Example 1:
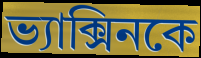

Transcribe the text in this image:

ভ্যাক্সিনকে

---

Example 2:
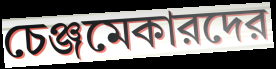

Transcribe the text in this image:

চেঞ্জমেকারদের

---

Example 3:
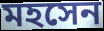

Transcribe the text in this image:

মহসেন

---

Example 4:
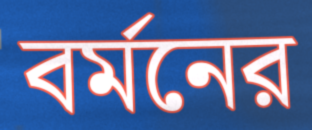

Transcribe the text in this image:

বর্মনের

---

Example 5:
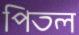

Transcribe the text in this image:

পিতল